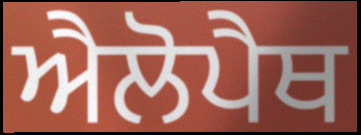
ਐਲੋਪੈਥ